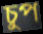
চুপ